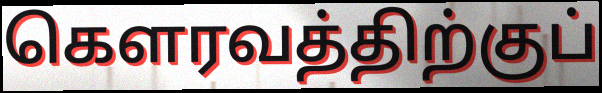
கௌரவத்திற்குப்